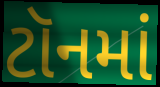
ટૉનમાં